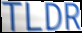
TLDR